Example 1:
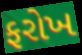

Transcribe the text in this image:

ફરોખ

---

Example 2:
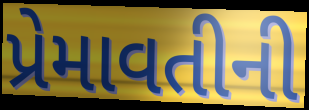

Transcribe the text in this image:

પ્રેમાવતીની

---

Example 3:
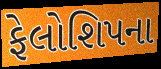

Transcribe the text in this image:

ફેલોશિપના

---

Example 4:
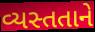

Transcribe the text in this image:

વ્યસ્તતાને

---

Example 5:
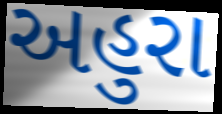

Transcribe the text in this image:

અહુરા